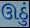
ઊઠું